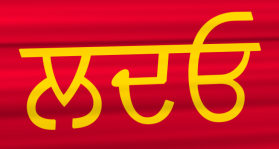
ਲਦਓ